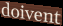
doivent